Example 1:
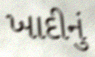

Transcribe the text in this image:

ખાદીનું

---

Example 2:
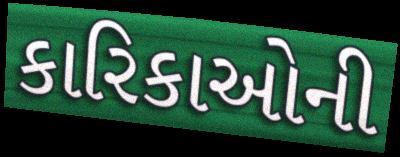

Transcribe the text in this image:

કારિકાઓની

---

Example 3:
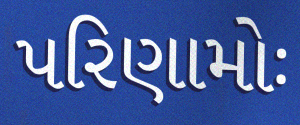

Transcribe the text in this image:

પરિણામોઃ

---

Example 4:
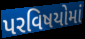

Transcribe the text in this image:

પરવિષયોમાં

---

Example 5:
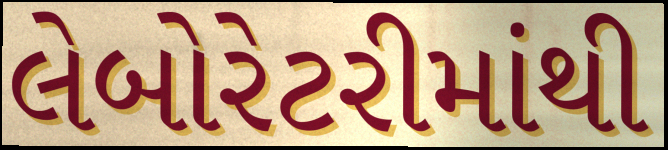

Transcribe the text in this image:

લેબોરેટરીમાંથી